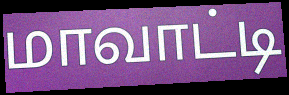
மாவாட்டி